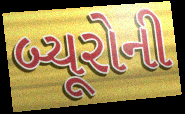
બ્યૂરોની